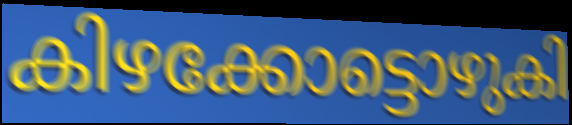
കിഴക്കോട്ടൊഴുകി